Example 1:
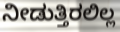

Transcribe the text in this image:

ನೀಡುತ್ತಿರಲಿಲ್ಲ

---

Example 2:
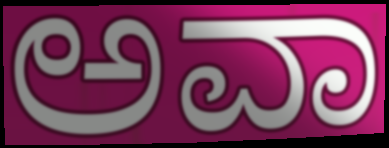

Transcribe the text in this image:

ಅವಾ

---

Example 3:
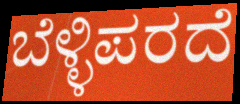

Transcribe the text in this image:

ಬೆಳ್ಳಿಪರದೆ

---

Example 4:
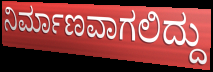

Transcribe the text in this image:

ನಿರ್ಮಾಣವಾಗಲಿದ್ದು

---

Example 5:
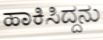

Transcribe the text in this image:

ಹಾಕಿಸಿದ್ದನು